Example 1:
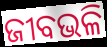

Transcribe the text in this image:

ଜୀବଭଳି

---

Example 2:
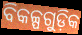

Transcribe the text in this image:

ବିକଳ୍ପଗୁଡ଼ିକ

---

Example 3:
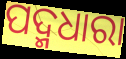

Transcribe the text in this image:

ପଦ୍ମଧାରା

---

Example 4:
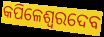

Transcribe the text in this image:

କପିଳେଶ୍ୱରଦେବ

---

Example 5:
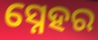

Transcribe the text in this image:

ସ୍ନେହର